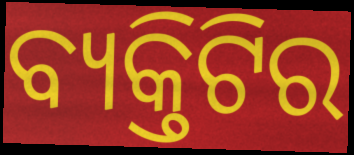
ବ୍ୟକ୍ତିଟିର